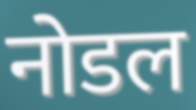
नोडल